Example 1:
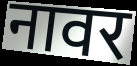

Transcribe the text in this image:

नावर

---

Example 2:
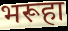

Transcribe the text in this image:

भरूहा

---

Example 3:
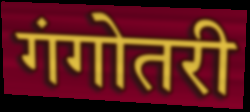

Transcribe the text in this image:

गंगोतरी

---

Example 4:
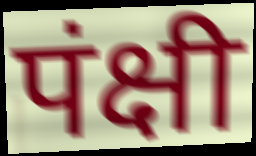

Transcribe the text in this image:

पंक्षी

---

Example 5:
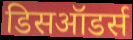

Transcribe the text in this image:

डिसऑडर्स